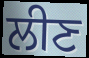
ਲੀਣ